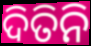
ଦିତିନି